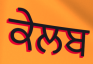
ਕੇਲਬ